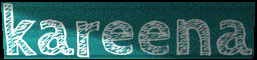
kareena